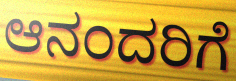
ಆನಂದರಿಗೆ